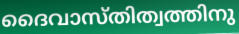
ദൈവാസ്തിത്വത്തിനു